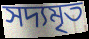
সদ্যমৃত